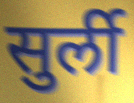
सुर्ली